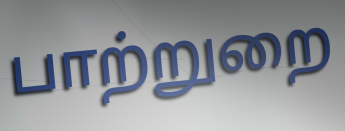
பாற்றுறை